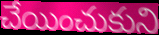
చేయించుకుని